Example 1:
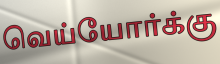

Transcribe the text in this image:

வெய்யோர்க்கு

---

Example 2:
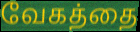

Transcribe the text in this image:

வேகத்தை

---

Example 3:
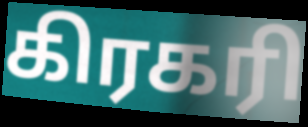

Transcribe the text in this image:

கிரகரி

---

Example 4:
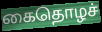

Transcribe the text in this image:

கைதொழச்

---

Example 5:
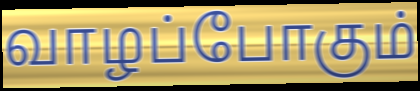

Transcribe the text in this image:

வாழப்போகும்